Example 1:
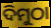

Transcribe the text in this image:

ଦିମୁଠା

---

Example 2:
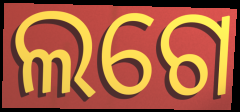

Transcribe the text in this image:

ଲଗେ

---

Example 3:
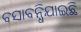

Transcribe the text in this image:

ବସାବନ୍ଧିଯାଇଛି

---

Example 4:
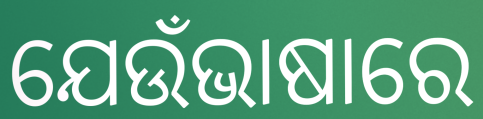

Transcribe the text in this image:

ଯେଉଁଭାଷାରେ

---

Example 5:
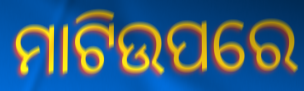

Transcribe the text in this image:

ମାଟିଉପରେ